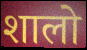
शालो